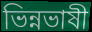
ভিন্নভাষী